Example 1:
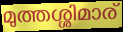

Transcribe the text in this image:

മുത്തശ്ശിമാര്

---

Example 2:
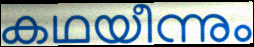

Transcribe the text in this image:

കഥയീന്നും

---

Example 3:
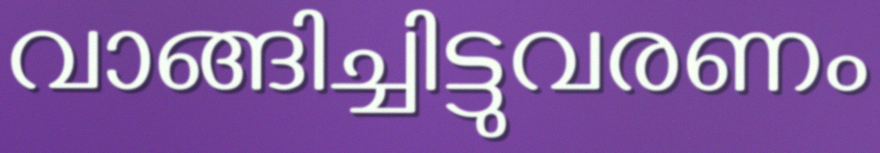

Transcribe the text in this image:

വാങ്ങിച്ചിട്ടുവരണം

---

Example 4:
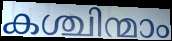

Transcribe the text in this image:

കശ്ചിന്മാം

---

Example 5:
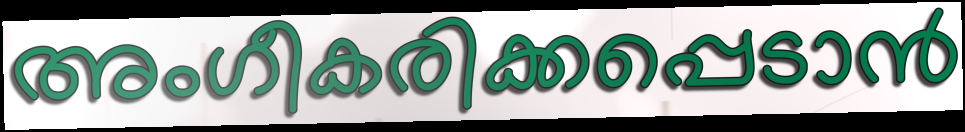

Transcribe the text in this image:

അംഗീകരിക്കപ്പെടാൻ